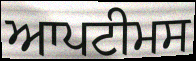
ਆਪਟੀਮਸ